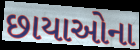
છાયાઓના